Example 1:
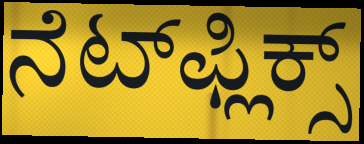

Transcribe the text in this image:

ನೆಟ್‌ಫ್ಲಿಕ್ಸ್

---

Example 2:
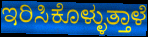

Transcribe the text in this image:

ಇರಿಸಿಕೊಳ್ಳುತ್ತಾಳೆ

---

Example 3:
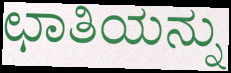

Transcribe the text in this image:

ಛಾತಿಯನ್ನು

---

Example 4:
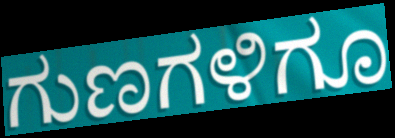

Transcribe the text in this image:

ಗುಣಗಳಿಗೂ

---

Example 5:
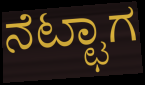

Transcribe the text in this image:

ನೆಟ್ಟಾಗ